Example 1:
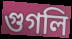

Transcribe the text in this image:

গুগলি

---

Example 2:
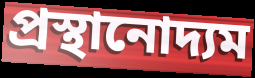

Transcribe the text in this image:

প্রস্থানোদ্যম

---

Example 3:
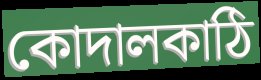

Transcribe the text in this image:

কোদালকাঠি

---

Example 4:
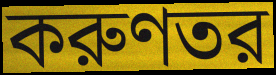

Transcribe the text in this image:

করুণতর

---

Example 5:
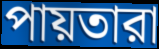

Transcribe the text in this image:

পায়তারা